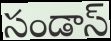
సండాస్